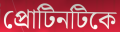
প্রোটিনটিকে